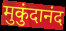
मुकुंदानंद